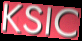
KSIC